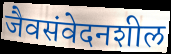
जैवसंवेदनशील